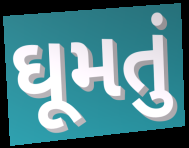
ઘૂમતું